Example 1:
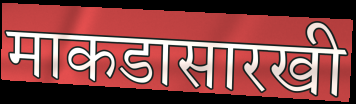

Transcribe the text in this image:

माकडासारखी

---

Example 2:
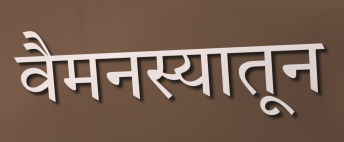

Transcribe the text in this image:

वैमनस्यातून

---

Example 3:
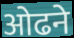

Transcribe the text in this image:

ओढने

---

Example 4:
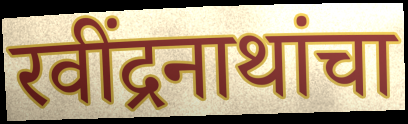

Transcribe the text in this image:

रवींद्रनाथांचा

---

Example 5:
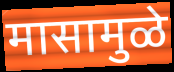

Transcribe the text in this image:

मासामुळे